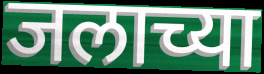
जलाच्या